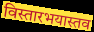
विस्तारभयास्तव